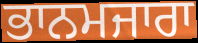
ਭਾਨਮਜਾਰਾ